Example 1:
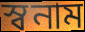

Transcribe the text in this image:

স্বনাম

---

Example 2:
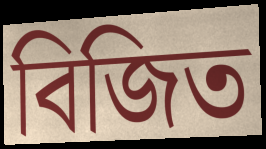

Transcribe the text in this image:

বিজিত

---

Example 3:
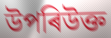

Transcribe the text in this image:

উপৰিউক্ত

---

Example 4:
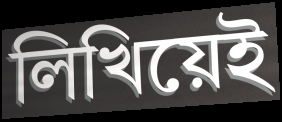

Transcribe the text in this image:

লিখিয়েই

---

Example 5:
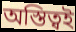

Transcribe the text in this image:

অস্তিত্বই